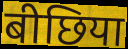
बीछिया